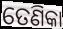
ତେଣିକା